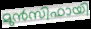
മുൻസിഫായി